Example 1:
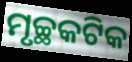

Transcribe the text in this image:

ମୃଚ୍ଛକଟିକ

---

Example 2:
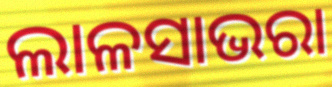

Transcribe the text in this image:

ଲାଳସାଭରା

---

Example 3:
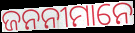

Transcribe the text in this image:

ଜନନୀମାନେ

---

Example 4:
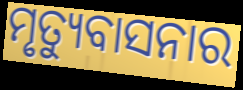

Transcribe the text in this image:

ମୃତ୍ୟୁବାସନାର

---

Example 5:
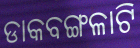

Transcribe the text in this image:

ଡାକବଙ୍ଗଳାଟି